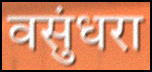
वसुंधरा